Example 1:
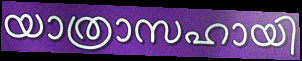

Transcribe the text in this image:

യാത്രാസഹായി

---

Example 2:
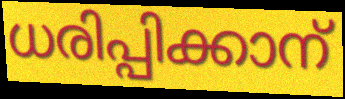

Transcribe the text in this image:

ധരിപ്പിക്കാന്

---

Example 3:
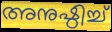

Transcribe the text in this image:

അനുഷ്ഠിച്ച്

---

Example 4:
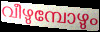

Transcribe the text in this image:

വീഴുമ്പോഴും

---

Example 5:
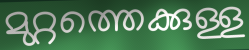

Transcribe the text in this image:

മുറ്റത്തെക്കുള്ള